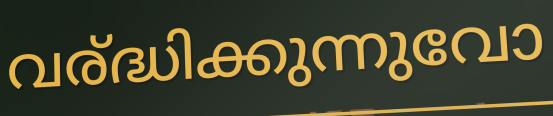
വര്ദ്ധിക്കുന്നുവോ